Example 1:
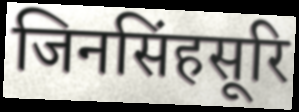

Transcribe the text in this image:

जिनसिंहसूरि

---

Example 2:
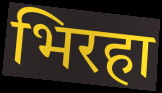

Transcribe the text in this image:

भिरहा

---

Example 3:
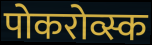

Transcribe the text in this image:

पोकरोव्स्क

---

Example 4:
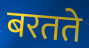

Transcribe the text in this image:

बरतते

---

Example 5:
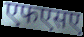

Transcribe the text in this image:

एफएसए